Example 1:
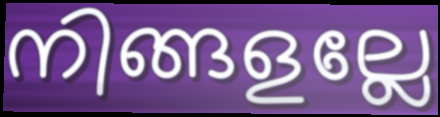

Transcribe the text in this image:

നിങ്ങളല്ലേ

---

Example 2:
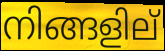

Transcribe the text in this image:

നിങ്ങളില്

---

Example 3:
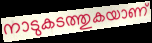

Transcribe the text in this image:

നാടുകടത്തുകയാണ്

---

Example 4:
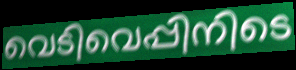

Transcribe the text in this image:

വെടിവെപ്പിനിടെ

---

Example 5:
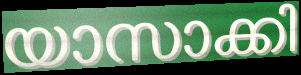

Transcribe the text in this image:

യാസാക്കി